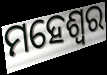
ମହେଶ୍ଵର